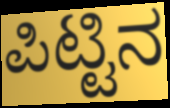
ಪಿಟ್ಟಿನ